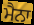
ਮੈਨਾ